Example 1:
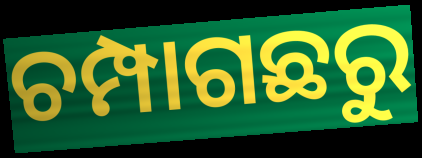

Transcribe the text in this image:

ଚମ୍ପାଗଛରୁ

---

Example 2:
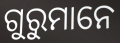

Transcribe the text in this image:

ଗୁରୁମାନେ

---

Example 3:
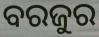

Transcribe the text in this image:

ବରଜୁର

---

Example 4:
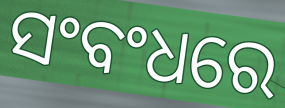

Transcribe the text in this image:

ସଂବଂଧରେ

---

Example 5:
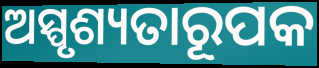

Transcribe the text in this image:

ଅସ୍ପୃଶ୍ୟତାରୂପକ